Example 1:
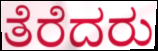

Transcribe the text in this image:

ತೆರೆದರು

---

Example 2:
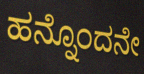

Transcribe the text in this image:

ಹನ್ನೊಂದನೇ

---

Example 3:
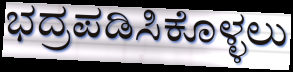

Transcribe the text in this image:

ಭದ್ರಪಡಿಸಿಕೊಳ್ಳಲು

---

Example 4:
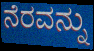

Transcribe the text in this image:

ನೆರವನ್ನು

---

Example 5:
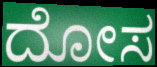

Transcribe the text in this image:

ದೋಸ